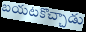
బయటకొచ్చాడు